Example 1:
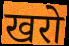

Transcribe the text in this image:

खरो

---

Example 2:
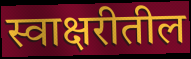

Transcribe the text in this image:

स्वाक्षरीतील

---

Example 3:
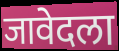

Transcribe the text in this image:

जावेदला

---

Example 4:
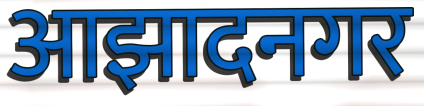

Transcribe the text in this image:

आझादनगर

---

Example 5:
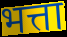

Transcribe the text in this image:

भत्ता